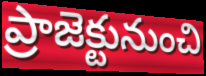
ప్రాజెక్టునుంచి